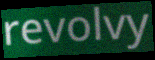
revolvy